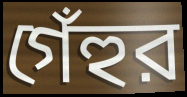
গেঁহুর